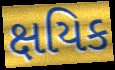
ક્ષયિક